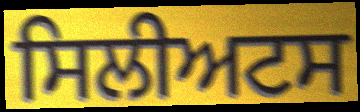
ਸਿਲੀਅਟਸ